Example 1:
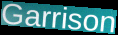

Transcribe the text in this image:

Garrison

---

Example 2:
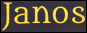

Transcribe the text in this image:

Janos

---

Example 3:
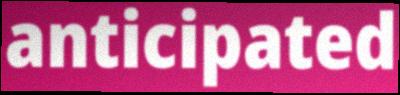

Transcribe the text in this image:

anticipated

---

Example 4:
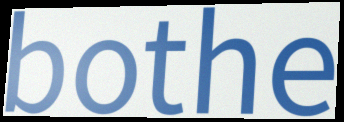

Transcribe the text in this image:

bothe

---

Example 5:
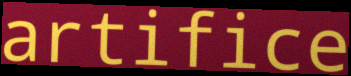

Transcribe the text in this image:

artifice